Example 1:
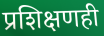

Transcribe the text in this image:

प्रशिक्षणही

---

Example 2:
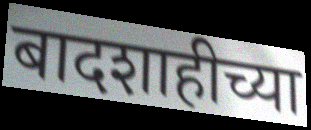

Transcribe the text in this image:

बादशाहीच्या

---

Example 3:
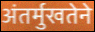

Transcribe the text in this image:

अंतर्मुखतेने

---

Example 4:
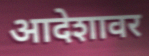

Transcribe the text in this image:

आदेशावर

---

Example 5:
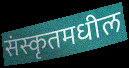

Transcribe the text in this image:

संस्कृतमधील